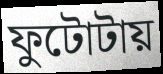
ফুটোটায়